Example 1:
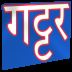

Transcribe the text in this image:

गट्टर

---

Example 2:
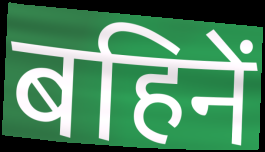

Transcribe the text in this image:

बहिनें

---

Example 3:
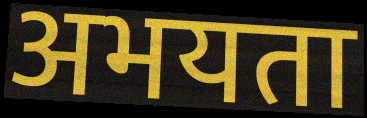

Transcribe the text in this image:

अभयता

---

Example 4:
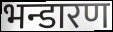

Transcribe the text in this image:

भन्डारण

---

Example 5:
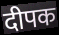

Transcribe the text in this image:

दीपक